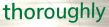
thoroughly